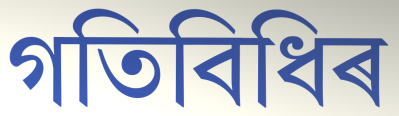
গতিবিধিৰ